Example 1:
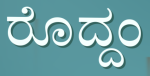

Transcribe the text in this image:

ರೊದ್ದಂ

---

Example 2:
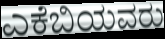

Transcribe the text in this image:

ಎಕೆಬಿಯವರು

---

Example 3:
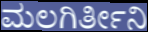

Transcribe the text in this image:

ಮಲಗಿರ್ತೀನಿ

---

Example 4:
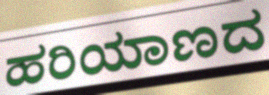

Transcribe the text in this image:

ಹರಿಯಾಣದ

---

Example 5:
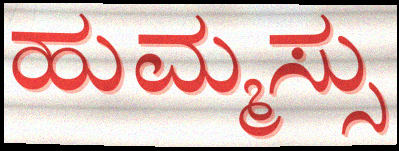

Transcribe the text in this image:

ಹುಮ್ಮಸ್ಸು